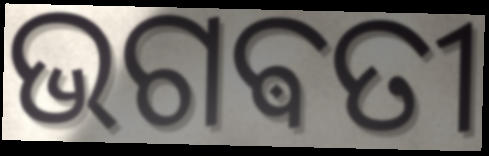
ଭଗଵତୀ